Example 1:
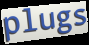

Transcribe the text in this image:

plugs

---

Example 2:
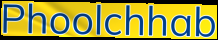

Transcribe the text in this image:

Phoolchhab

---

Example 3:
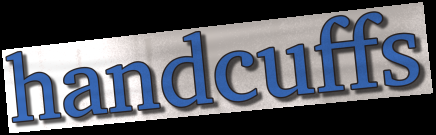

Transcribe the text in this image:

handcuffs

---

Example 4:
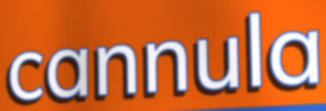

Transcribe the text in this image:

cannula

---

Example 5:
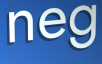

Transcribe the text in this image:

neg